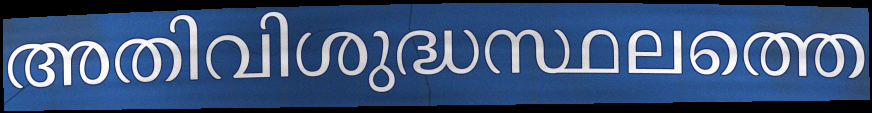
അതിവിശുദ്ധസ്ഥലത്തെ